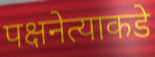
पक्षनेत्याकडे